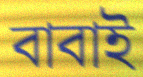
বাবাই